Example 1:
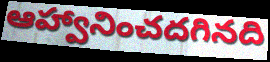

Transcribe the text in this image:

ఆహ్వానించదగినది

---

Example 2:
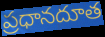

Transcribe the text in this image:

ప్రధానదూత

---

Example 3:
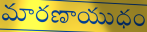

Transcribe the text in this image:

మారణాయుధం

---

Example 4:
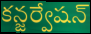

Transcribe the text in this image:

కన్జర్వేషన్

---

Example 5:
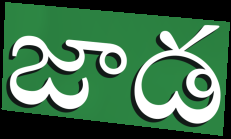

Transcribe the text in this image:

జాడ